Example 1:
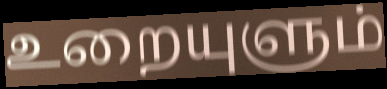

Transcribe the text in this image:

உறையுளும்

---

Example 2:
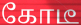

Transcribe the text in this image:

கோடீ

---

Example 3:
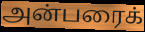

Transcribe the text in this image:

அன்பரைக்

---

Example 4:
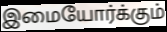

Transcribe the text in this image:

இமையோர்க்கும்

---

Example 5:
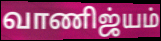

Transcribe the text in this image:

வாணிஜ்யம்